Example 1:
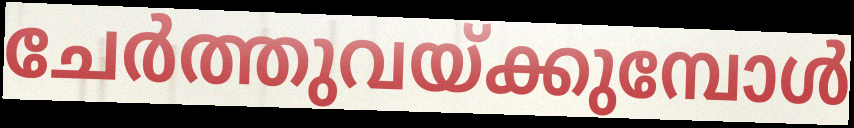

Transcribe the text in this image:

ചേർത്തുവയ്ക്കുമ്പോൾ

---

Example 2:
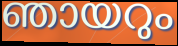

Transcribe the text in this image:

ഞായറും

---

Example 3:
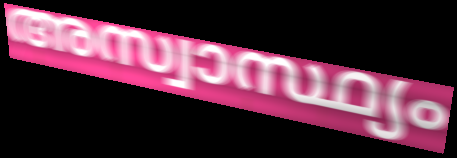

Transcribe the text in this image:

അസ്വാസ്ഥ്യം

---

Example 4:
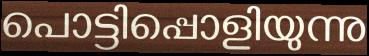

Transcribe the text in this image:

പൊട്ടിപ്പൊളിയുന്നു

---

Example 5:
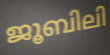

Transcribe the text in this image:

ജൂബിലി